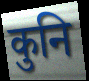
कुनि